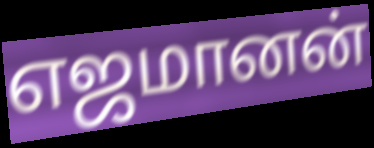
எஜமானன்